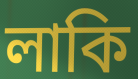
লাকি